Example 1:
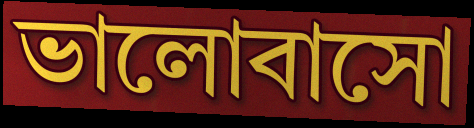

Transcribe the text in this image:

ভালোবাসো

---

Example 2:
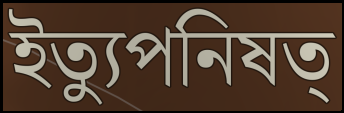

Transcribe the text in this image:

ইত্যুপনিষত্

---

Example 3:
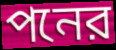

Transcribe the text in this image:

পনের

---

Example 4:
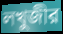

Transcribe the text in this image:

লখুজীর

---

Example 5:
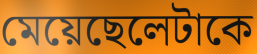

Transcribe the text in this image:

মেয়েছেলেটাকে